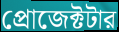
প্রোজেক্টটার